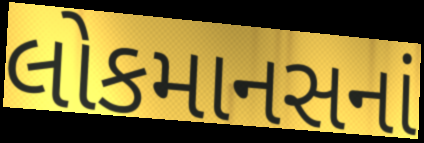
લોકમાનસનાં